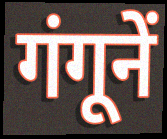
गंगूनें